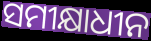
ସମୀକ୍ଷାଧୀନ